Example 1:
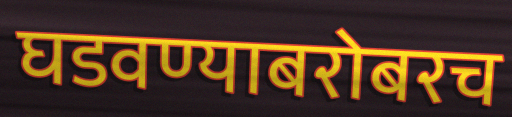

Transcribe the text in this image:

घडवण्याबरोबरच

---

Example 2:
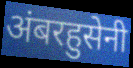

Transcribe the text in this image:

अंबरहुसेनी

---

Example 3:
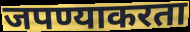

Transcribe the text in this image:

जपण्याकरता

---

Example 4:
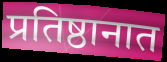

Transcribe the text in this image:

प्रतिष्ठानात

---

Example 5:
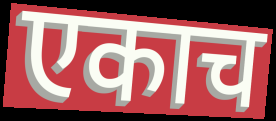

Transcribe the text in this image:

एकाच